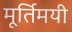
मूर्तिमयी